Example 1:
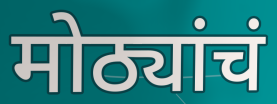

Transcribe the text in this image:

मोठ्यांचं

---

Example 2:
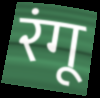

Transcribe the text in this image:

रंगू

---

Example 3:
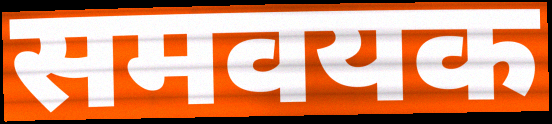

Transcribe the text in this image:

समवयक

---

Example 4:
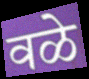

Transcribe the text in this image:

वळे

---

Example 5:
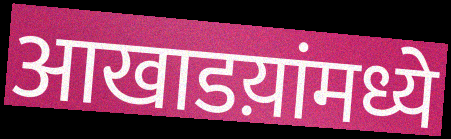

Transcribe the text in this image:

आखाडय़ांमध्ये